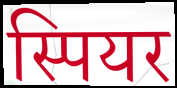
स्पियर